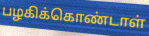
பழகிக்கொண்டாள்